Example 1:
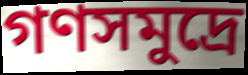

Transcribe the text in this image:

গণসমুদ্রে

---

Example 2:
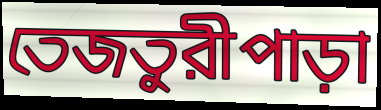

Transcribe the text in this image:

তেজতুরীপাড়া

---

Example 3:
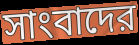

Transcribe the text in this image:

সাংবাদের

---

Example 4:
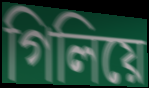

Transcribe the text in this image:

গিলিয়ে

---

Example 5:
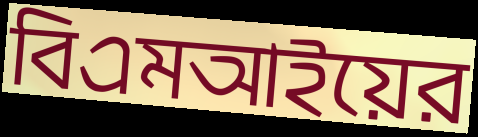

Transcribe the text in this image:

বিএমআইয়ের